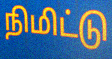
நிமிட்டு